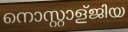
നൊസ്റ്റാള്ജിയ